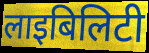
लाइबिलिटी